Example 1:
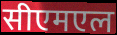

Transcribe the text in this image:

सीएमएल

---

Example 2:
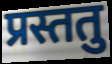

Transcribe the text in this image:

प्रस्ततु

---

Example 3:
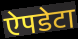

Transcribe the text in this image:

ऐपडेटा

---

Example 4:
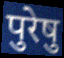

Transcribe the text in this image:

पुरेषु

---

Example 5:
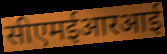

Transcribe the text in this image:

सीएमईआरआई